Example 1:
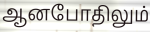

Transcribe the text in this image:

ஆனபோதிலும்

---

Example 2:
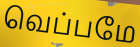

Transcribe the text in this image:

வெப்பமே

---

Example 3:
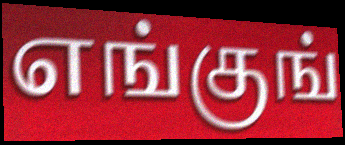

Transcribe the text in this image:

எங்குங்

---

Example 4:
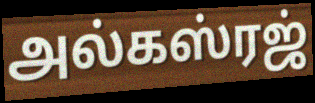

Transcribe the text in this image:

அல்கஸ்ரஜ்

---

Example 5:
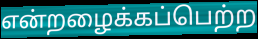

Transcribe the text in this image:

என்றழைக்கப்பெற்ற